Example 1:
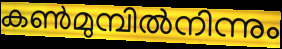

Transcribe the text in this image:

കൺമുമ്പിൽനിന്നും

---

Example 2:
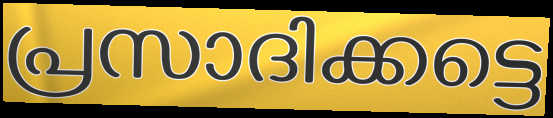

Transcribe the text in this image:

പ്രസാദിക്കട്ടെ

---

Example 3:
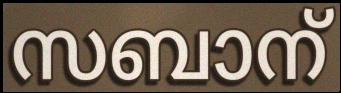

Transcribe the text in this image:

സബാന്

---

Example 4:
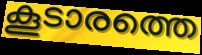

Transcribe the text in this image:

കൂടാരത്തെ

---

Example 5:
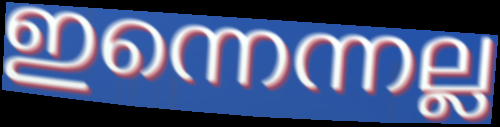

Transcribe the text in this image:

ഇന്നെന്നല്ല